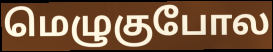
மெழுகுபோல